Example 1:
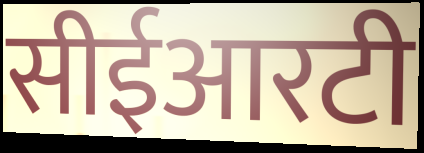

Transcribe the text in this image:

सीईआरटी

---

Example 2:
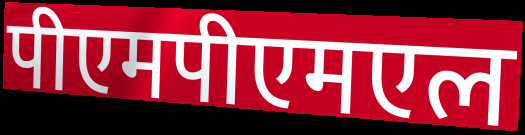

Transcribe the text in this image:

पीएमपीएमएल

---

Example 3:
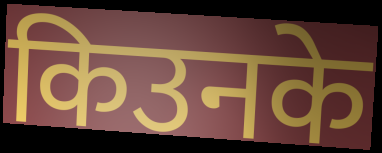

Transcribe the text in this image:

किउनके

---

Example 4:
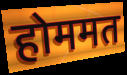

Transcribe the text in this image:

होममत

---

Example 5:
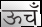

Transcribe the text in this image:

ऊचँ